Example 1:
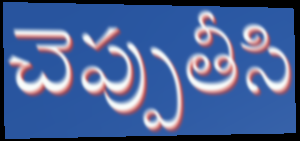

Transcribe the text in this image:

చెప్పుతీసి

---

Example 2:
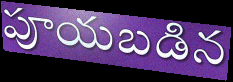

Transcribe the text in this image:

పూయబడిన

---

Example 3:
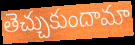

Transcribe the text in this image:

తెచ్చుకుందామా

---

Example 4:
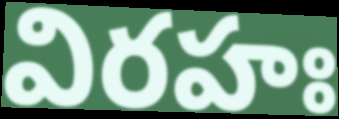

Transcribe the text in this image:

విరహః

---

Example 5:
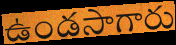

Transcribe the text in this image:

ఉండసాగారు